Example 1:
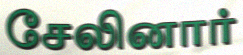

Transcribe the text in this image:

சேலினார்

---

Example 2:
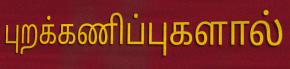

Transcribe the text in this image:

புறக்கணிப்புகளால்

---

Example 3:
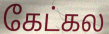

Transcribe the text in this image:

கேட்கல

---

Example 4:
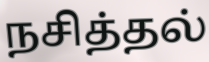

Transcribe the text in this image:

நசித்தல்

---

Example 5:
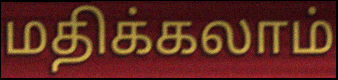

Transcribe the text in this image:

மதிக்கலாம்